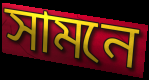
সামনে